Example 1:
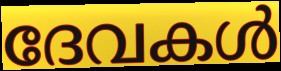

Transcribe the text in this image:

ദേവകൾ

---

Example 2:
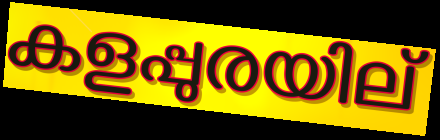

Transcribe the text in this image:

കളപ്പുരയില്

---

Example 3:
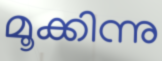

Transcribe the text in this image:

മൂക്കിന്നു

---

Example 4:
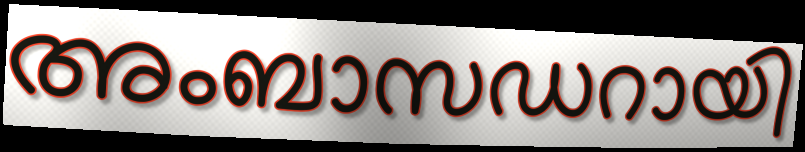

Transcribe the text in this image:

അംബാസഡറായി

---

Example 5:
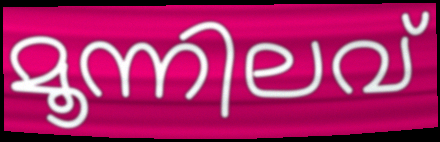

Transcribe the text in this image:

മൂന്നിലവ്